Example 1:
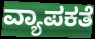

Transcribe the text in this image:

ವ್ಯಾಪಕತೆ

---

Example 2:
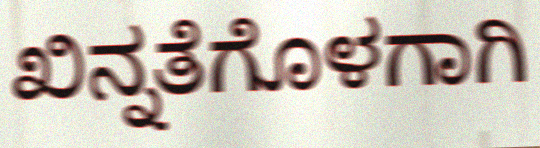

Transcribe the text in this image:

ಖಿನ್ನತೆಗೊಳಗಾಗಿ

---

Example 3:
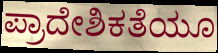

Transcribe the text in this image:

ಪ್ರಾದೇಶಿಕತೆಯೂ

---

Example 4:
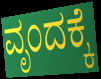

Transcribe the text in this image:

ವೃಂದಕ್ಕೆ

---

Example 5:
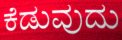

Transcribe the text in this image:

ಕೆಡುವುದು